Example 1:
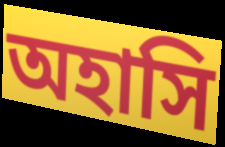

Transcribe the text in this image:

অহাসি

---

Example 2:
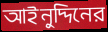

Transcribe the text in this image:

আইনুদ্দিনের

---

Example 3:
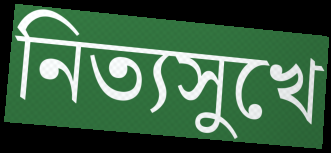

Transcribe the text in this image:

নিত্যসুখে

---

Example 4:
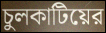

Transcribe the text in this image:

চুলকাটিয়ের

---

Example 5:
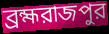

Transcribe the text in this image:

ব্রহ্মরাজপুর